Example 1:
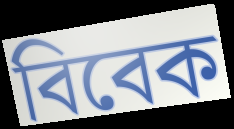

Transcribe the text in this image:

বিবেক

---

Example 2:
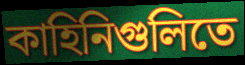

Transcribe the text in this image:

কাহিনিগুলিতে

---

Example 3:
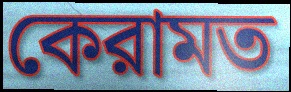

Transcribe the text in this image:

কেরামত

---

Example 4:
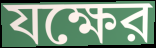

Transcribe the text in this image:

যক্ষের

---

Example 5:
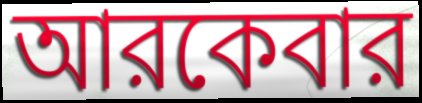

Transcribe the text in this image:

আরকেবার